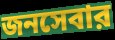
জনসেবার